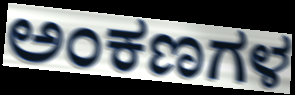
ಅಂಕಣಗಳ